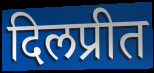
दिलप्रीत